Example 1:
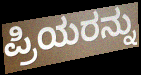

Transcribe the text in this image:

ಪ್ರಿಯರನ್ನು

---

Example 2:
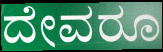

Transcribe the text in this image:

ದೇವರೂ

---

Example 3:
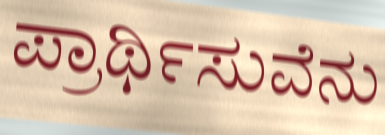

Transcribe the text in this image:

ಪ್ರಾರ್ಥಿಸುವೆನು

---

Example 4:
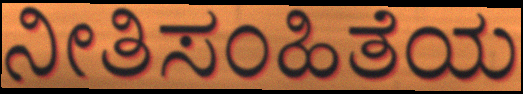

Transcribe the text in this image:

ನೀತಿಸಂಹಿತೆಯ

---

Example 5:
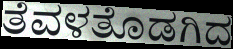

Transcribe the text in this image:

ತೆವಳತೊಡಗಿದ